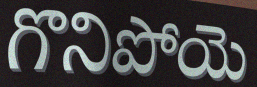
గొనిపోయె